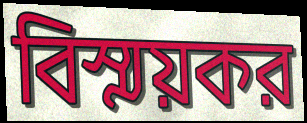
বিস্ময়কর